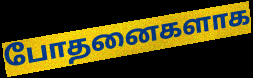
போதனைகளாக